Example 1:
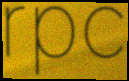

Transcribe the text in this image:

rpc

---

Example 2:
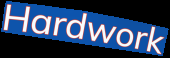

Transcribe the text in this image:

Hardwork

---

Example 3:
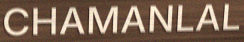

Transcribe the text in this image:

CHAMANLAL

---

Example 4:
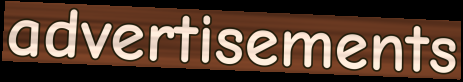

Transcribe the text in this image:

advertisements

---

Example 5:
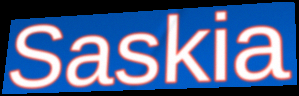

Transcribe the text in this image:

Saskia